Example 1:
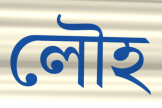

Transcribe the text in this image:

লৌহ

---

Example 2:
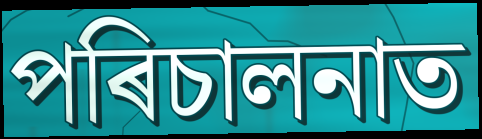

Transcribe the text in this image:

পৰিচালনাত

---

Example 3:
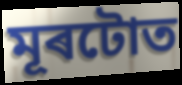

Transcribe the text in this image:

মূৰটোত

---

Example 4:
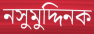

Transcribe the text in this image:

নসুমুদ্দিনক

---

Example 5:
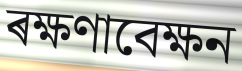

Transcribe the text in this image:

ৰক্ষণাবেক্ষন